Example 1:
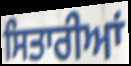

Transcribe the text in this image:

ਸਿਤਾਰੀਆਂ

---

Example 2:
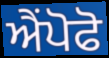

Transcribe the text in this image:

ਐਂਪੋਫੋ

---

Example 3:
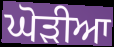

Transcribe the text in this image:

ਘੋੜੀਆ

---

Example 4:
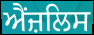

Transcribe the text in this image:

ਐਂਜ਼ਲਿਸ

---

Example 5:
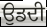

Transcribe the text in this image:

ਉਡਦੀ